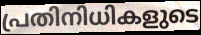
പ്രതിനിധികളുടെ